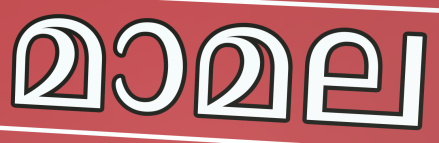
മാമല